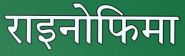
राइनोफिमा